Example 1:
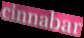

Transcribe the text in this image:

cinnabar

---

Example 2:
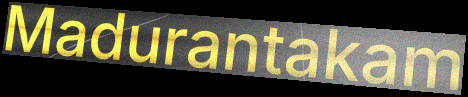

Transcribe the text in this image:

Madurantakam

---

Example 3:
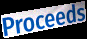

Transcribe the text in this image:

Proceeds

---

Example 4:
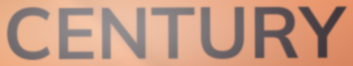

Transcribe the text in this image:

CENTURY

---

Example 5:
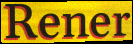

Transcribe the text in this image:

Rener